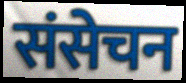
संसेचन